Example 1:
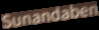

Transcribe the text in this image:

Sunandaben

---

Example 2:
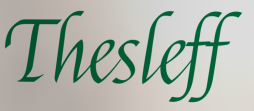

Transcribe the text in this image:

Thesleff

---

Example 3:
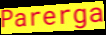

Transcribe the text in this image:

Parerga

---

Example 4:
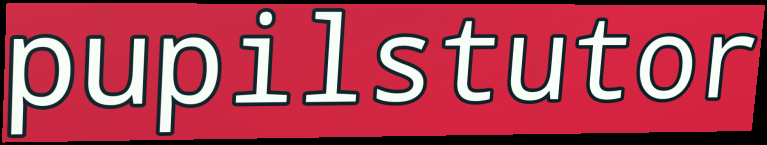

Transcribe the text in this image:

pupilstutor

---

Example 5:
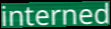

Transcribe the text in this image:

interned